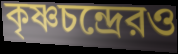
কৃষ্ণচন্দ্রেরও